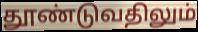
தூண்டுவதிலும்